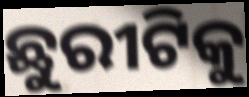
ଛୁରୀଟିକୁ